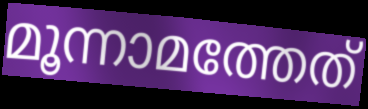
മൂന്നാമത്തേത്